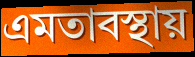
এমতাবস্থায়